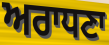
ਅਰਾਧਣਾ